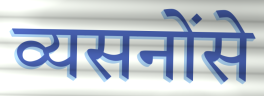
व्यसनोंसे